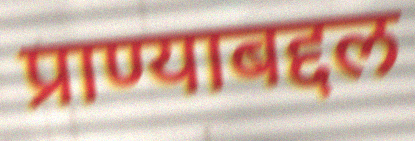
प्राण्याबद्दल